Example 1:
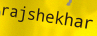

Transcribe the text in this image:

rajshekhar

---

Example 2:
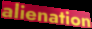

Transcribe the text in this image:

alienation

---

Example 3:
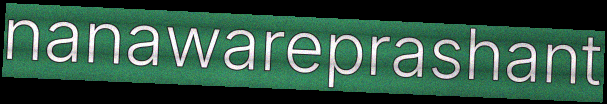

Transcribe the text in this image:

nanawareprashant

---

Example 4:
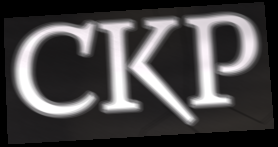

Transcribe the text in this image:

CKP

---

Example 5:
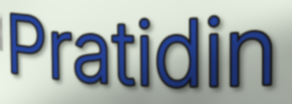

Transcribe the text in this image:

Pratidin